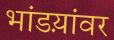
भांडय़ांवर